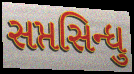
સપ્તસિન્ધુ